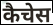
कैचेस